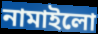
নামাইলো